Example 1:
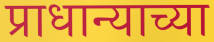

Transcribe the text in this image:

प्राधान्याच्या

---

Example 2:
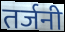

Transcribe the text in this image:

तर्जनी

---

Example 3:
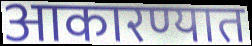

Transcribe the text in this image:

आकारण्यात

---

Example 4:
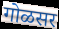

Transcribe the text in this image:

गोळसर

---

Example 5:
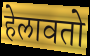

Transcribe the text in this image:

हेलावतो